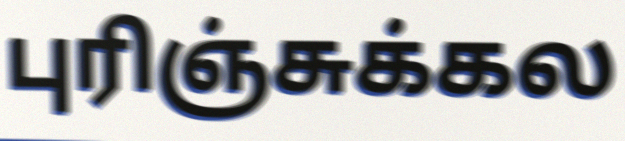
புரிஞ்சுக்கல